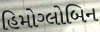
હિમોગ્લોબિન